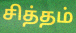
சித்தம்